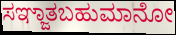
ಸಞ್ಜಾತಬಹುಮಾನೋ